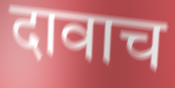
दावाच